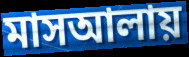
মাসআলায়